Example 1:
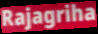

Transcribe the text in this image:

Rajagriha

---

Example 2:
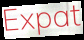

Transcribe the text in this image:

Expat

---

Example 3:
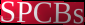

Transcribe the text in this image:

SPCBs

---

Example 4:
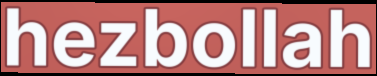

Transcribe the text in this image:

hezbollah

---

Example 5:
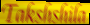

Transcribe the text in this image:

Takshshila